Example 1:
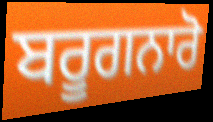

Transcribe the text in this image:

ਬਰੂਗਨਾਰੋ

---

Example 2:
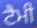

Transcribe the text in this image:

ਟੈਮੀ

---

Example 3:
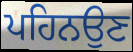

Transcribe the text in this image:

ਪਹਿਨਉਣ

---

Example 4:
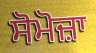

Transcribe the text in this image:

ਸੋਮੋਜ਼ਾ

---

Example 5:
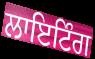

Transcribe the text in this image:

ਲਾਇਟਿੰਗ